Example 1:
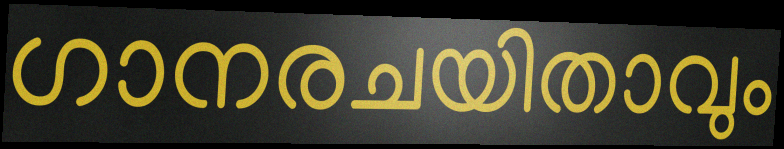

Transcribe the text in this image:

ഗാനരചയിതാവും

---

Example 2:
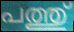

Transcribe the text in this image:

പത്തു്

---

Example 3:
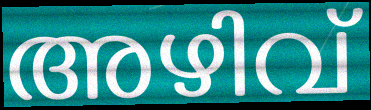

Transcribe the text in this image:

അഴിവ്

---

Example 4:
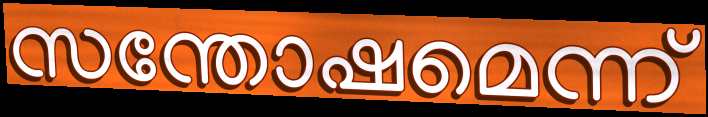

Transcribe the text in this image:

സന്തോഷമെന്ന്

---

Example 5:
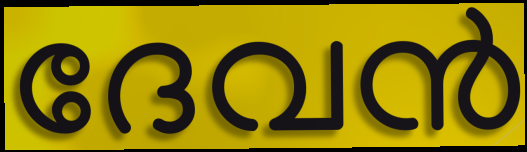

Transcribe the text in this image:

ദേവൻ